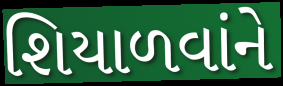
શિયાળવાંને